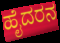
ಹೈದರನ